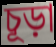
চূড়া